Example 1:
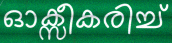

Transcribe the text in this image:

ഓക്സീകരിച്ച്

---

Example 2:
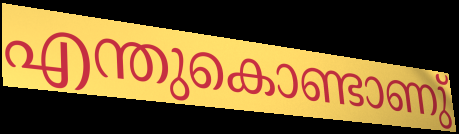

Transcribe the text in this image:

എന്തുകൊണ്ടാണു്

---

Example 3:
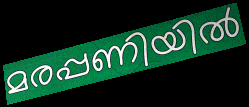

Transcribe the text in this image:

മരപ്പണിയിൽ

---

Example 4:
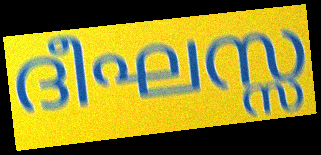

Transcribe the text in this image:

ദീഘസ്സ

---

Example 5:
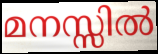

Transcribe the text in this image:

മനസ്സിൽ